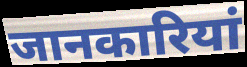
जानकारियां